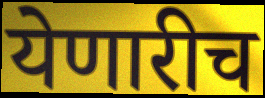
येणारीच